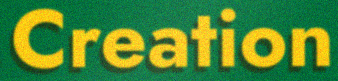
Creation